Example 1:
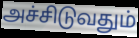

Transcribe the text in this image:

அச்சிடுவதும்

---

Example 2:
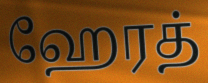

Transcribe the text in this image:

ஹேரத்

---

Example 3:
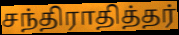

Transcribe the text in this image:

சந்திராதித்தர்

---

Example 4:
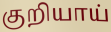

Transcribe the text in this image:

குறியாய்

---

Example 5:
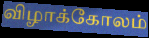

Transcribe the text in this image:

விழாக்கோலம்